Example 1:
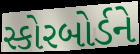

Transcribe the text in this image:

સ્કોરબોર્ડને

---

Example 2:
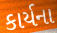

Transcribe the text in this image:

કાર્યના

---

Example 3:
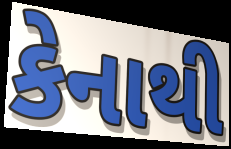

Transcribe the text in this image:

કેનાથી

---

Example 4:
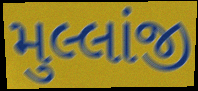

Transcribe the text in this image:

મુલ્લાંજી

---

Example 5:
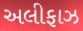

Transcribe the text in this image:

અલીફાઝ